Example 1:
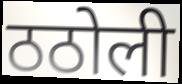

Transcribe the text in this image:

ठठोली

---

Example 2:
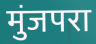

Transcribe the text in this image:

मुंजपरा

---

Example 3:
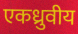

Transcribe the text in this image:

एकध्रुवीय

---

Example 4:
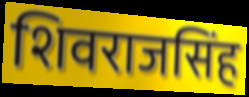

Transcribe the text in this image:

शिवराजसिंह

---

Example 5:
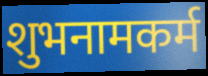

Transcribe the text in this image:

शुभनामकर्म